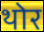
थोर